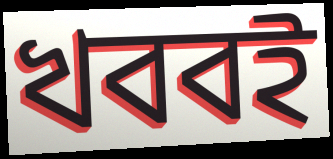
খববই